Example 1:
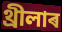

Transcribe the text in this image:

থ্ৰীলাৰ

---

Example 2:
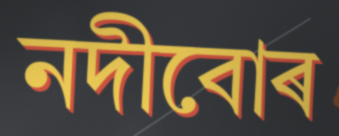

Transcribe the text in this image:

নদীবোৰ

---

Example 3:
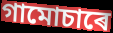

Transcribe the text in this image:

গামোচাৰে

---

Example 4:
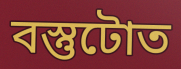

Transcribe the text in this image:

বস্তুটোত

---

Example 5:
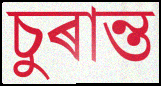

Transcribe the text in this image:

চুৰান্ত